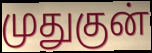
முதுகுன்